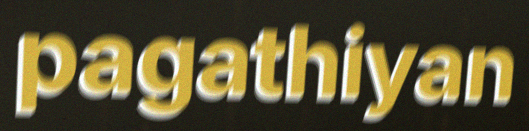
pagathiyan